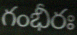
గంభీరః